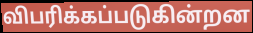
விபரிக்கப்படுகின்றன